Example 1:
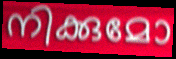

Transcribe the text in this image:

നിക്കുമോ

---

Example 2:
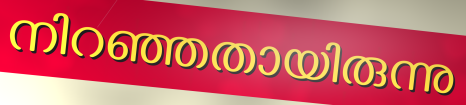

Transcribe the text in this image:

നിറഞ്ഞതായിരുന്നു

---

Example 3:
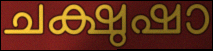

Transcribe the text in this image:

ചക്ഷുഷാ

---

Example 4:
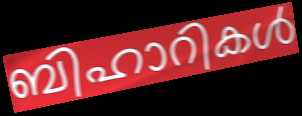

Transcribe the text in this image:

ബിഹാറികൾ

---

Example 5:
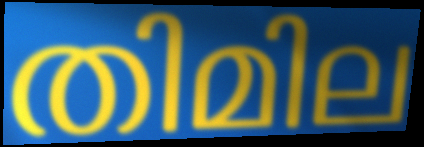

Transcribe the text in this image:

തിമില